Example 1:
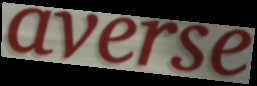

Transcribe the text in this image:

averse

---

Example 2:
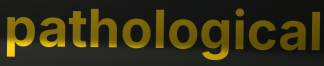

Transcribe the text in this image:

pathological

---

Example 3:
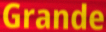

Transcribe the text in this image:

Grande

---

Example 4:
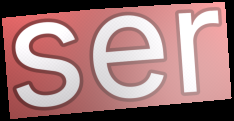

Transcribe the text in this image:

ser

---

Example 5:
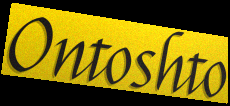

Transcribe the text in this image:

Ontoshto